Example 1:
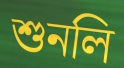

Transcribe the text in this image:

শুনলি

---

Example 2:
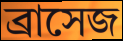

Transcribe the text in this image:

ব্রাসেজ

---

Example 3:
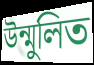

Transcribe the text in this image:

উন্মুলিত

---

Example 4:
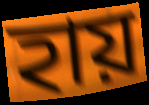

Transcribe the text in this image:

হায়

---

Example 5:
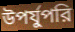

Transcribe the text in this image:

উপর্যুপরি